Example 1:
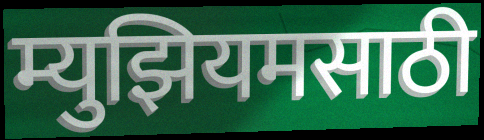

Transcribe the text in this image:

म्युझियमसाठी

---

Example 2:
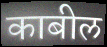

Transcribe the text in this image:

काबील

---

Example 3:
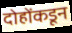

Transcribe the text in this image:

दोहोंकडून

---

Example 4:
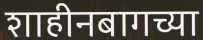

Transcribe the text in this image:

शाहीनबागच्या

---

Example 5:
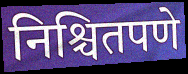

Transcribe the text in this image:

निश्चितपणे